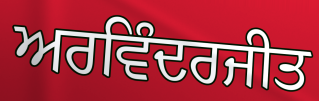
ਅਰਵਿੰਦਰਜੀਤ